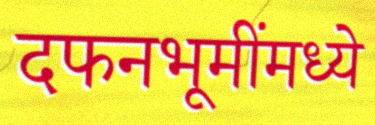
दफनभूमींमध्ये